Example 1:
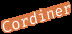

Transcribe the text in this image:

Cordiner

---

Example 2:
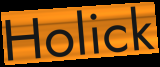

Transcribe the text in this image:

Holick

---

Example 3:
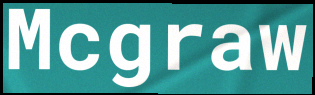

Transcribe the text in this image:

Mcgraw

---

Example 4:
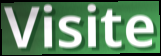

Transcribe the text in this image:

Visite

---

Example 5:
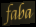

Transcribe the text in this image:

faba